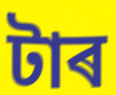
টাৰ